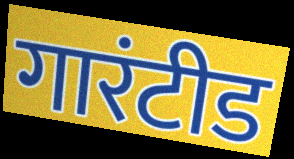
गारंटीड